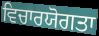
ਵਿਚਾਰਯੋਗਤਾ